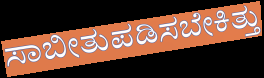
ಸಾಬೀತುಪಡಿಸಬೇಕಿತ್ತು